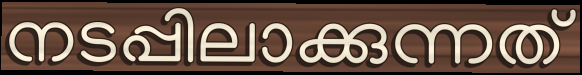
നടപ്പിലാക്കുന്നത്